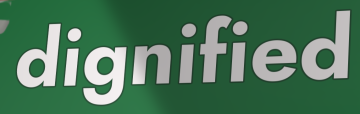
dignified